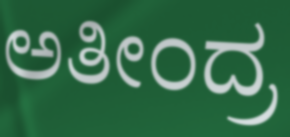
ಅತೀಂದ್ರ